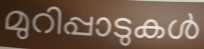
മുറിപ്പാടുകൾ